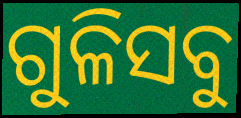
ଗୁଳିସବୁ